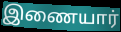
இணையார்